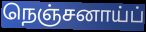
நெஞ்சனாய்ப்